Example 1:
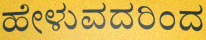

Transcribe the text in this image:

ಹೇಳುವದರಿಂದ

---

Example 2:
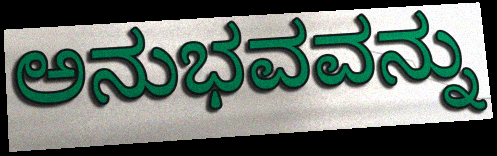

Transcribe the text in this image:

ಅನುಭವವನ್ನು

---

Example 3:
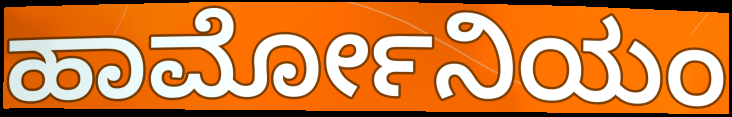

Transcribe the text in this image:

ಹಾರ್ಮೋನಿಯಂ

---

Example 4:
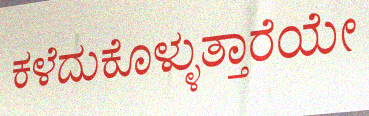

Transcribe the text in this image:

ಕಳೆದುಕೊಳ್ಳುತ್ತಾರೆಯೇ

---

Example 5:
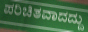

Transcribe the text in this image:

ಪರಿಚಿತವಾದದ್ದು